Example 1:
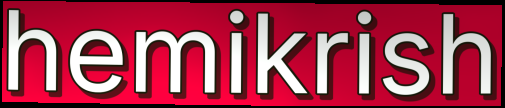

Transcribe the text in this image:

hemikrish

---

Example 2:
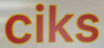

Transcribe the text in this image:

ciks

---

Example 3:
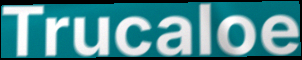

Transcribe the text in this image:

Trucaloe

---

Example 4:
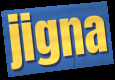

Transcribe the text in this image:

jigna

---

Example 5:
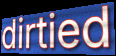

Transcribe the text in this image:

dirtied